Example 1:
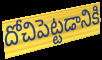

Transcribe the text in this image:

దోచిపెట్టడానికి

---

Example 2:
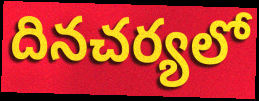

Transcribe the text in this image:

దినచర్యలో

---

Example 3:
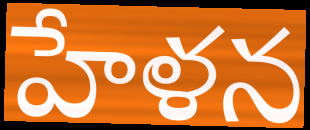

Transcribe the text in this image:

హేళన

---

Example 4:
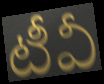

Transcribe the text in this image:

టీవీ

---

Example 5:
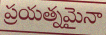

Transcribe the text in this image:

ప్రయత్నమైనా